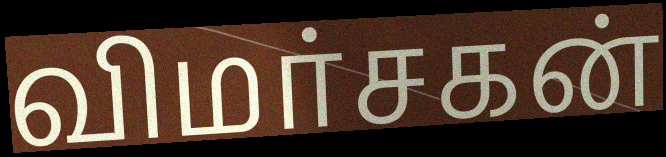
விமர்சகன்